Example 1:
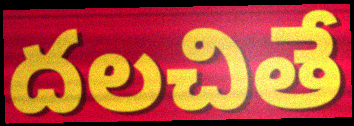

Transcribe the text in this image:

దలచితే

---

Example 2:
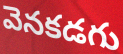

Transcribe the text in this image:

వెనకడగు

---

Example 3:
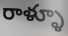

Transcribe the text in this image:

రాళ్ళూ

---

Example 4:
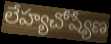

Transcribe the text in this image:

లేహ్యచోష్యేణ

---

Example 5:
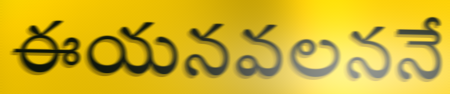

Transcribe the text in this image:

ఈయనవలననే